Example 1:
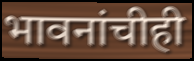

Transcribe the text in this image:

भावनांचीही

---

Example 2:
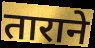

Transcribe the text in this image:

ताराने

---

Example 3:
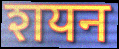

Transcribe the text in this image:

शयन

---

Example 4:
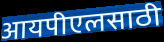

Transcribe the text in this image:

आयपीएलसाठी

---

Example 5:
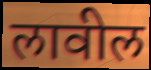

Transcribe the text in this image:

लावील